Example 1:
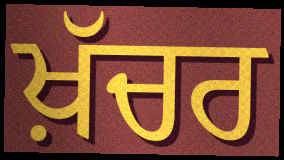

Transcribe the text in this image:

ਖ਼ੱਚਰ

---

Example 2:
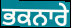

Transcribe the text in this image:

ਭਕਨਾਰੇ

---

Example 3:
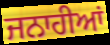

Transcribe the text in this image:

ਜਨਾਹੀਆਂ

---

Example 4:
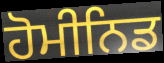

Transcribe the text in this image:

ਹੋਮੀਨਿਡ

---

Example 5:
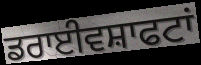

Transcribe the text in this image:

ਡਰਾਈਵਸ਼ਾਫਟਾਂ